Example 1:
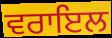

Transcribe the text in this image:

ਵਰਾਇਲ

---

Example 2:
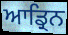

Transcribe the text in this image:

ਆਡ੍ਰਿਨ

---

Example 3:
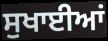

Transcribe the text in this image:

ਸੁਖਾਈਆਂ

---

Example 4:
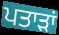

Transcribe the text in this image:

ਪਤਾੜਾਂ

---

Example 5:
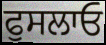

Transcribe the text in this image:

ਫੁਸਲਾਓ